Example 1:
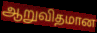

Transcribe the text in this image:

ஆறுவிதமான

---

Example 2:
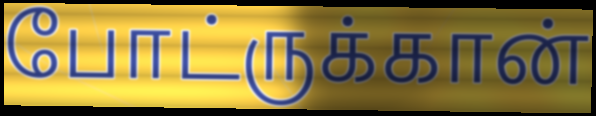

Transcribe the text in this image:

போட்ருக்கான்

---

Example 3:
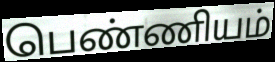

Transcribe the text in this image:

பெண்ணியம்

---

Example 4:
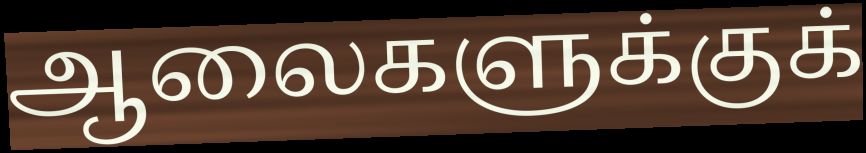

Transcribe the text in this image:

ஆலைகளுக்குக்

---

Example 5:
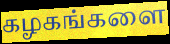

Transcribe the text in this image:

கழகங்களை